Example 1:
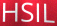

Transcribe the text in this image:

HSIL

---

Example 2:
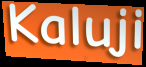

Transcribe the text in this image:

Kaluji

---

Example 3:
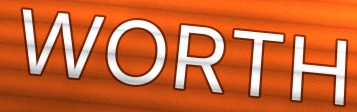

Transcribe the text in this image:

WORTH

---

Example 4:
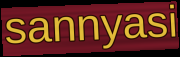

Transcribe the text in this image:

sannyasi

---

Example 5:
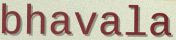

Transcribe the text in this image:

bhavala